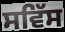
ਸਵਿੱਸ